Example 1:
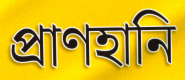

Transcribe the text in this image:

প্রাণহানি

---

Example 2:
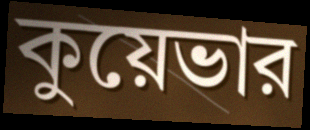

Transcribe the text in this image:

কুয়েভার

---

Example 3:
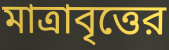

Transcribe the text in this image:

মাত্রাবৃত্তের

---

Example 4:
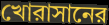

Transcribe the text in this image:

খোরাসানের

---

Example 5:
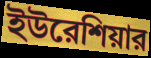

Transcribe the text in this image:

ইউরেশিয়ার